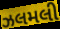
ઝલમલી